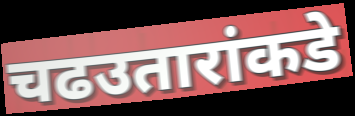
चढउतारांकडे